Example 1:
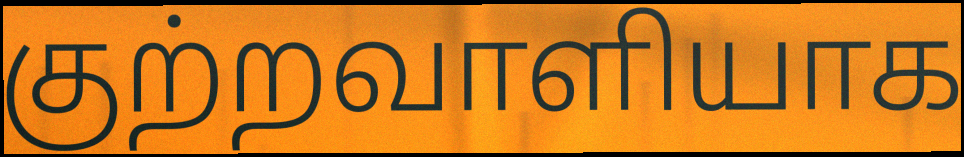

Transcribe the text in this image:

குற்றவாளியாக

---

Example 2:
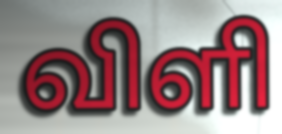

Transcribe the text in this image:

விளி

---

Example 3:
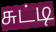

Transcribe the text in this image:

சுட்டி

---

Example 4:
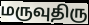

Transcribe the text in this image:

மருவுதிரு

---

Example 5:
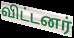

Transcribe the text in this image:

விட்டனர்